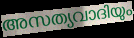
അസത്യവാദിയും